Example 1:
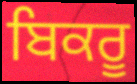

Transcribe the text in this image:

ਬਿਕਰੂ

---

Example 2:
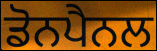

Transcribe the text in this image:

ਡੋਨਪੈਨਲ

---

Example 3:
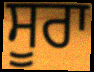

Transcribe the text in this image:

ਸੂਰਾ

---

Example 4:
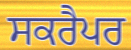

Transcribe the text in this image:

ਸਕਰੈਪਰ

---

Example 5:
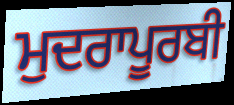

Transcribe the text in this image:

ਮੁਦਰਾਪੂਰਬੀ